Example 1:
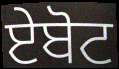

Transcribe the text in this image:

ਏਬੋਟ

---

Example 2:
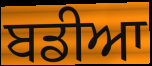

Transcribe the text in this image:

ਬਡੀਆ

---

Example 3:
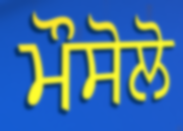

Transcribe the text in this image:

ਮੌਸੋਲੋ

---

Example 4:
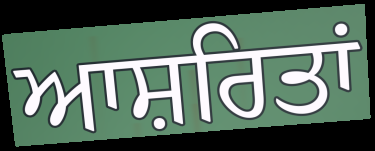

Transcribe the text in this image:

ਆਸ਼ਰਿਤਾਂ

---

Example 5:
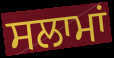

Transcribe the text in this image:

ਸਲਾਮਾਂ